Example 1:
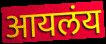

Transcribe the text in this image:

आयलंय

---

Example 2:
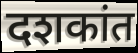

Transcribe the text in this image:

दशकांत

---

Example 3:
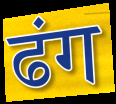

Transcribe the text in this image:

ढंग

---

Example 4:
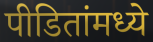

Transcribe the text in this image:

पीडितांमध्ये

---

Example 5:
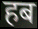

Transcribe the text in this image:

हब